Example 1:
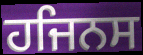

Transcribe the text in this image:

ਹਜਿਨਸ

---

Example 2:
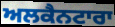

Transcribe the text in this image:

ਅਲਕੈਨਟਾਰਾ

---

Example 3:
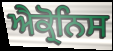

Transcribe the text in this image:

ਐਕ੍ਰੋਨਿਸ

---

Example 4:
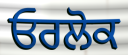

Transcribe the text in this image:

ਓਰਲੋਕ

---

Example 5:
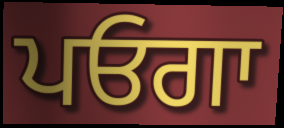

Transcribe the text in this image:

ਪਓਗਾ